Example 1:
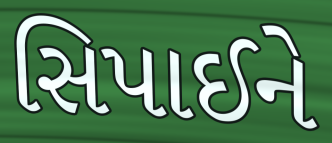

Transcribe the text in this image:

સિપાઈને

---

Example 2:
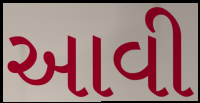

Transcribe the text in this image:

આવી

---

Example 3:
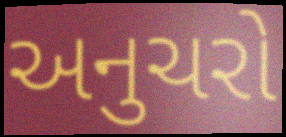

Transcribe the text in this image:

અનુચરો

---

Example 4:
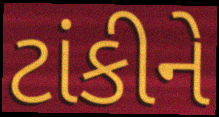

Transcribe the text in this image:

ટાંકીને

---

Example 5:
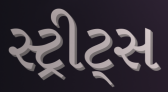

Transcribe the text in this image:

સ્ટ્રીટ્સ